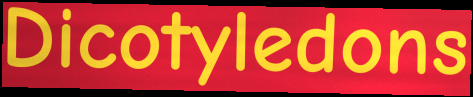
Dicotyledons